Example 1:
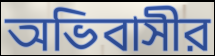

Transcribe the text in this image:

অভিবাসীর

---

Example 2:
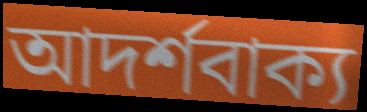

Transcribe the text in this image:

আদর্শবাক্য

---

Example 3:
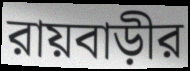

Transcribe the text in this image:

রায়বাড়ীর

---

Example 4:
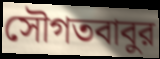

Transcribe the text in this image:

সৌগতবাবুর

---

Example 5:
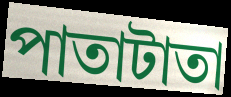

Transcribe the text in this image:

পাতাটাতা